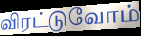
விரட்டுவோம்